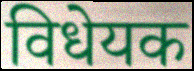
विधेयक